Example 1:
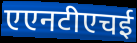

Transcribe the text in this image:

एएनटीएचई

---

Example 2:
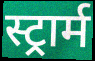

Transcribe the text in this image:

स्ट्रार्म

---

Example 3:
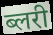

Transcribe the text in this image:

ब्लरी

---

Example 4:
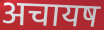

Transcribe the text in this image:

अचायष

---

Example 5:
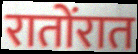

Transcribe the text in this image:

रातोंरात